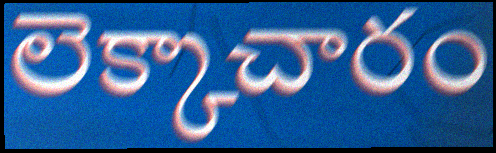
లెక్కాచారం